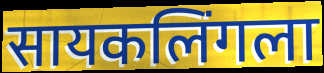
सायकलिंगला